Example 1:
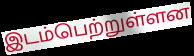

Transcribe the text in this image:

இடம்பெற்றுள்ளன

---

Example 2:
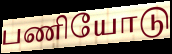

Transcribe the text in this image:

பணியோடு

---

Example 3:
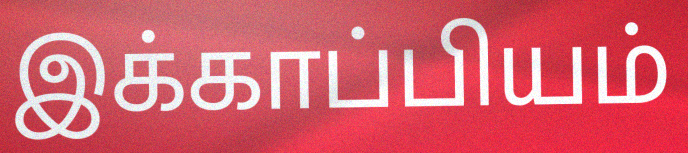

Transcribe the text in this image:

இக்காப்பியம்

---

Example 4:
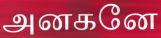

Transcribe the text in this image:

அனகனே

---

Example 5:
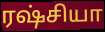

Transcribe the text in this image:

ரஷ்சியா